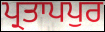
ਪ੍ਰਤਾਪਪੁਰ